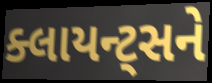
ક્લાયન્ટ્સને